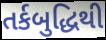
તર્કબુદ્ધિથી